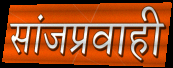
सांजप्रवाही